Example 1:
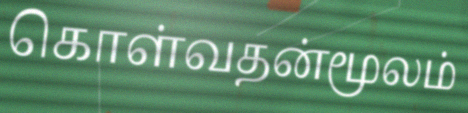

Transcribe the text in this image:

கொள்வதன்மூலம்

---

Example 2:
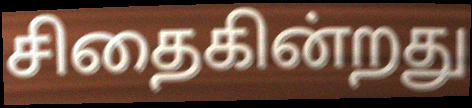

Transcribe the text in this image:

சிதைகின்றது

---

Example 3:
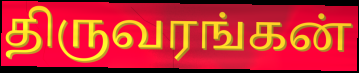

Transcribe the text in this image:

திருவரங்கன்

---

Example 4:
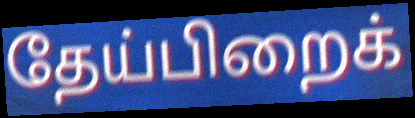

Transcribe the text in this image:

தேய்பிறைக்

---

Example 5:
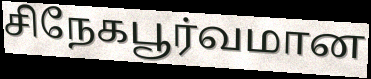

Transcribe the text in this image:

சிநேகபூர்வமான